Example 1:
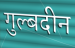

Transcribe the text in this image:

गुल्बदीन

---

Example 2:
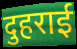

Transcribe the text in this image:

दुहराई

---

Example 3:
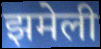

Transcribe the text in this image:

झमेली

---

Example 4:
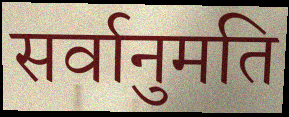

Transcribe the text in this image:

सर्वानुमति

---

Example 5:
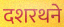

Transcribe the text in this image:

दशरथने